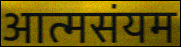
आत्मसंयम